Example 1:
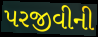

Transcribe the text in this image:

પરજીવીની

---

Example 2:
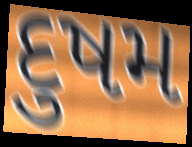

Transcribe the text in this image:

દુષમ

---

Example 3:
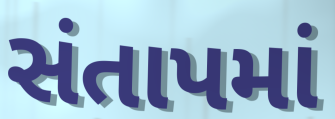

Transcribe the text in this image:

સંતાપમાં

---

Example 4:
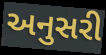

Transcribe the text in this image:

અનુસરી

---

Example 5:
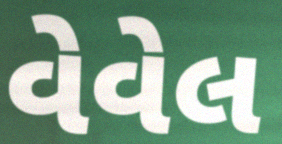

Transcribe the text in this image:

વેવેલ